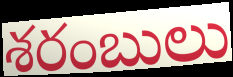
శరంబులు